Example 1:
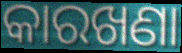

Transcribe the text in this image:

କାରଖଣା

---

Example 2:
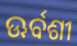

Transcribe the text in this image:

ଊର୍ବଶୀ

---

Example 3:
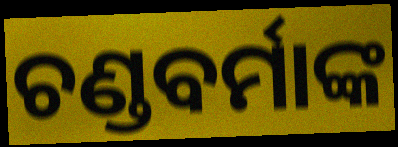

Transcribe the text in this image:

ଚଣ୍ଡବର୍ମାଙ୍କ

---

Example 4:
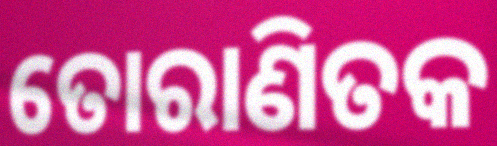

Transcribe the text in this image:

ତୋରାଣିତକ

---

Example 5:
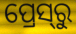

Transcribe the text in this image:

ପ୍ରେସ୍‍ରୁ